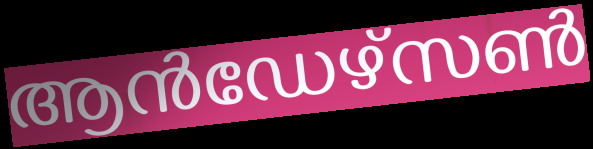
ആൻഡേഴ്സൺ